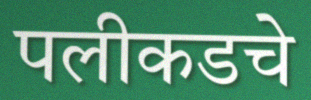
पलीकडचे